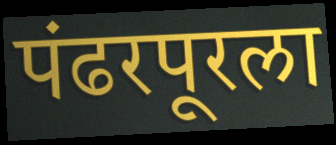
पंढरपूरला